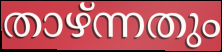
താഴ്ന്നതും